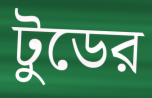
টুডের